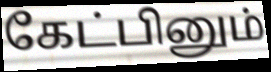
கேட்பினும்